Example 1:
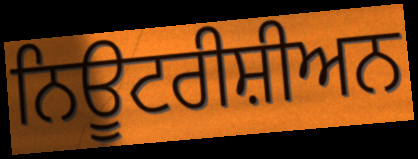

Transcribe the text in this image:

ਨਿਊਟਰੀਸ਼ੀਅਨ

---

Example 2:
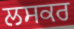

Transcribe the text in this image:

ਲਸਕਰ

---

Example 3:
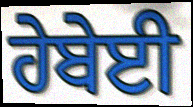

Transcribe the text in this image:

ਹੇਬੇਈ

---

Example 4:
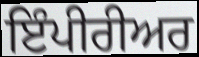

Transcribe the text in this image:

ਇੰਪੀਰੀਅਰ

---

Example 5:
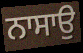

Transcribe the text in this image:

ਨਾਸਾਉ